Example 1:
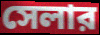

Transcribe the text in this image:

সেলার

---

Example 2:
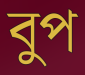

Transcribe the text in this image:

বুপ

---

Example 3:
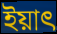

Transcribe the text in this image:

ইয়াৎ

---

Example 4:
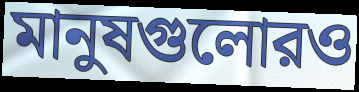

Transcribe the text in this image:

মানুষগুলোরও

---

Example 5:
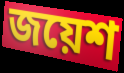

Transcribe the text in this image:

জয়েশ